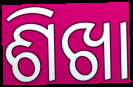
ଶିଖା